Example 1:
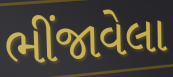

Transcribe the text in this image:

ભીંજાવેલા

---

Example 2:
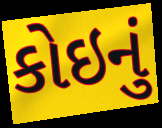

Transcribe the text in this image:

કોઇનું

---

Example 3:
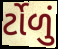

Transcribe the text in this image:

ર્ટોળું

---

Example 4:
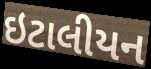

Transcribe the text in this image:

ઇટાલીયન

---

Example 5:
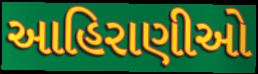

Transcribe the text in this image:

આહિરાણીઓ